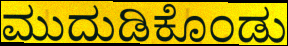
ಮುದುಡಿಕೊಂಡು